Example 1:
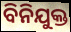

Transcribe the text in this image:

ବିନିଯୁକ୍ତ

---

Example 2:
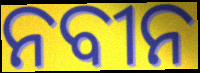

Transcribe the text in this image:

ନବୀନ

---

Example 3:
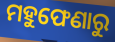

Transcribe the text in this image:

ମହୁଫେଣାରୁ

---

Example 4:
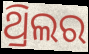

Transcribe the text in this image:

ଥ୍ରିଲର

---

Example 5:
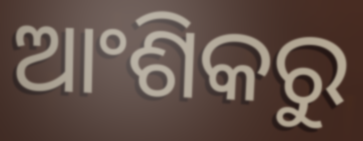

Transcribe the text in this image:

ଆଂଶିକରୁ